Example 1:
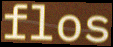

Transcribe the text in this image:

flos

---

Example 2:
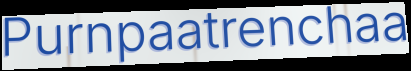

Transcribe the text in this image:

Purnpaatrenchaa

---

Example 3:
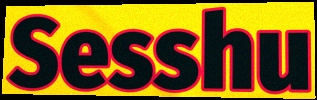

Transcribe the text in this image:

Sesshu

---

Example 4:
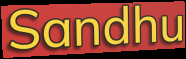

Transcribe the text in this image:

Sandhu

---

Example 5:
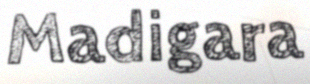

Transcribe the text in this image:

Madigara